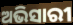
ଅଭିସାରୀ